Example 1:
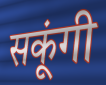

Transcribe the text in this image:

सकूंगी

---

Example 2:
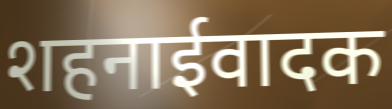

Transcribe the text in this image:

शहनाईवादक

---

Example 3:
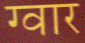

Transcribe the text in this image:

ग्वार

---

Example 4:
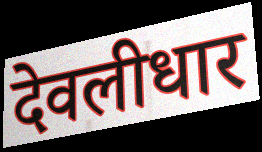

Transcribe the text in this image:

देवलीधार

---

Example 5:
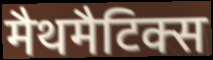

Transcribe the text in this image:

मैथमैटिक्स